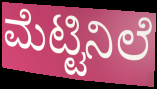
ಮೆಟ್ಟಿನಿಲೆ